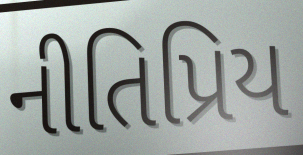
નીતિપ્રિય